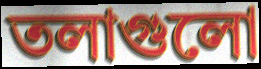
তলাগুলো